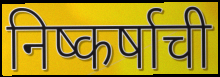
निष्कर्षाची